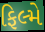
ફિલ્મે